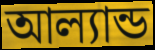
আল্যান্ড